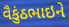
વૈકુંઠભાઇને